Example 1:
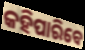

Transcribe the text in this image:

କହିପାରିବେ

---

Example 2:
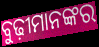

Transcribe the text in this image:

ବୁଢ଼ୀମାନଙ୍କର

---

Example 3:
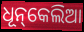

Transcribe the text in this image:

ଧୂନ୍‌କେଲିଆ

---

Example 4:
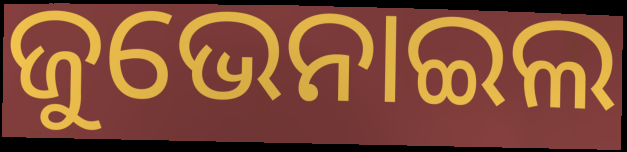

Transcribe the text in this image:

ଜୁଭେନାଇଲ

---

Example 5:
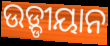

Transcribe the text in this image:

ଉଡ଼୍ଡୀୟାନ